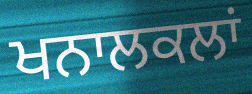
ਖਨਾਲਕਲਾਂ